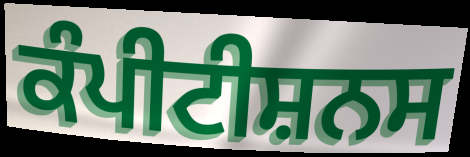
ਕੰਪੀਟੀਸ਼ਨਸ